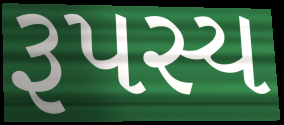
રૂપસ્ય